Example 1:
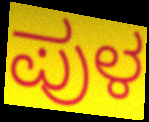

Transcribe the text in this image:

ಪುಳ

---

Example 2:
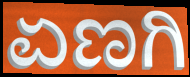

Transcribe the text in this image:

ಏಣಗಿ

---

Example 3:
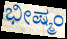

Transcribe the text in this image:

ಭೀಷ್ಮಂ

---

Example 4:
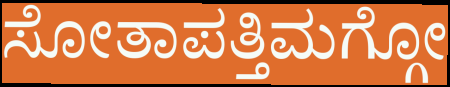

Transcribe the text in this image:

ಸೋತಾಪತ್ತಿಮಗ್ಗೋ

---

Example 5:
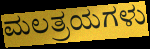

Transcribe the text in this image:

ಮಲತ್ರಯಗಳು